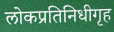
लोकप्रतिनिधीगृह